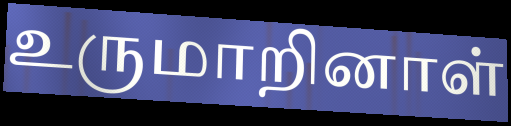
உருமாறினாள்